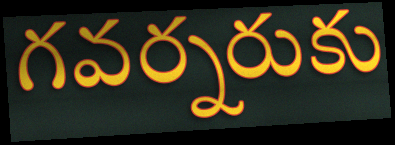
గవర్నరుకు